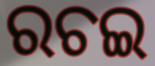
ରଚଇ